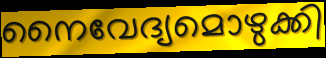
നൈവേദ്യമൊഴുക്കി